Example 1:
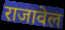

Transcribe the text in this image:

राजावेल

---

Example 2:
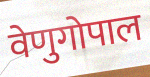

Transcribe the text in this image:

वेणुगोपाल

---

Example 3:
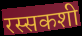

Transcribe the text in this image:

रस्सकशी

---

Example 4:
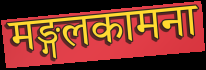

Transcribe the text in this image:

मङ्गलकामना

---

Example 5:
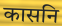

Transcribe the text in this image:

कासनि